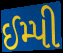
ઈમ્પી